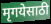
मृगयेसाठी